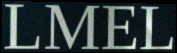
LMEL